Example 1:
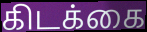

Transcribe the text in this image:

கிடக்கை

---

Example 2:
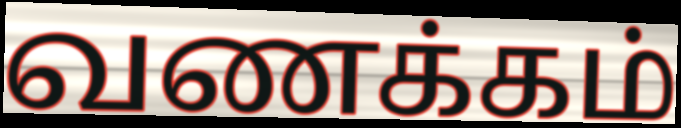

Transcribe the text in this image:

வணக்கம்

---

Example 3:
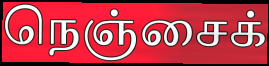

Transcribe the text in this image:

நெஞ்சைக்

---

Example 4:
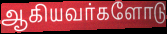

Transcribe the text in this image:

ஆகியவர்களோடு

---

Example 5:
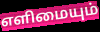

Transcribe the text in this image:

எளிமையும்